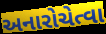
અનારોચેત્વા